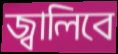
জ্বালিবে